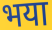
भया